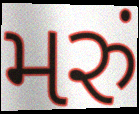
મરું